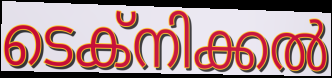
ടെക്നിക്കൽ